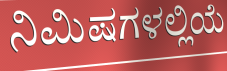
ನಿಮಿಷಗಳಲ್ಲಿಯೆ